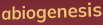
abiogenesis